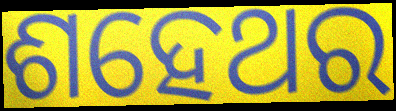
ଶହେଥର